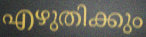
എഴുതിക്കും